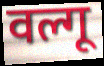
वल्गू